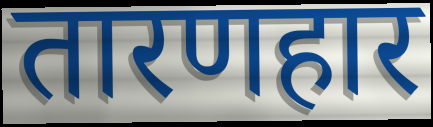
तारणहार